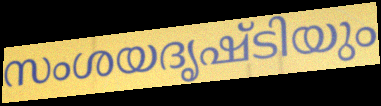
സംശയദൃഷ്ടിയും